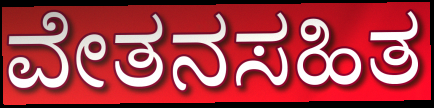
ವೇತನಸಹಿತ